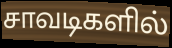
சாவடிகளில்